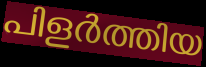
പിളർത്തിയ